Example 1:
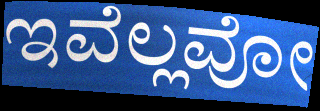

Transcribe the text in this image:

ಇವೆಲ್ಲವೋ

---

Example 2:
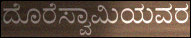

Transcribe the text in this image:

ದೊರೆಸ್ವಾಮಿಯವರ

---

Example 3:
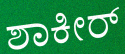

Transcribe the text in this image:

ಶಾಕೀರ್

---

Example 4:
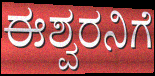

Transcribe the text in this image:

ಈಶ್ವರನಿಗೆ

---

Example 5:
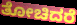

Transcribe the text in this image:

ತೋಚಿದರೆ